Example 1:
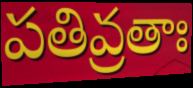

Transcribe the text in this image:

పతివ్రతాః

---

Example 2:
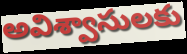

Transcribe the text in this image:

అవిశ్వాసులకు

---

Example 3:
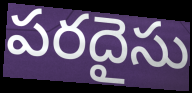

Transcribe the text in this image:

పరదైసు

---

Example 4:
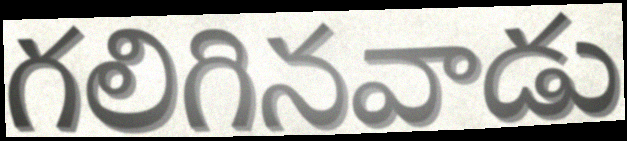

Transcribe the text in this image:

గలిగినవాడు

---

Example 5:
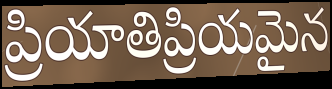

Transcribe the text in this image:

ప్రియాతిప్రియమైన